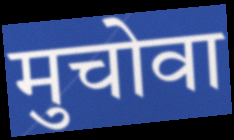
मुचोवा